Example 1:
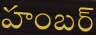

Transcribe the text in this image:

హంబర్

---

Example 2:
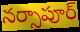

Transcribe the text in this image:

నర్సాపూర్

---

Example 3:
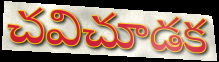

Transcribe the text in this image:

చవిచూడక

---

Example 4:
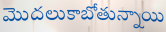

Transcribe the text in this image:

మొదలుకాబోతున్నాయి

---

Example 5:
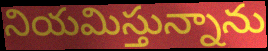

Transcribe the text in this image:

నియమిస్తున్నాను